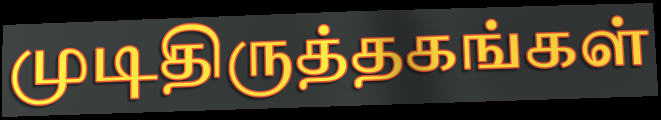
முடிதிருத்தகங்கள்